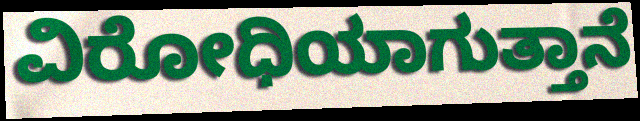
ವಿರೋಧಿಯಾಗುತ್ತಾನೆ